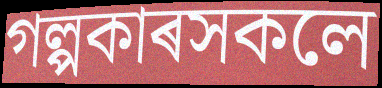
গল্পকাৰসকলে